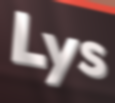
Lys